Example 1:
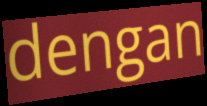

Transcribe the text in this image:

dengan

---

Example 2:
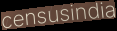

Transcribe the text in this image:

censusindia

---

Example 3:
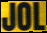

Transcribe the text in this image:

JOL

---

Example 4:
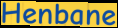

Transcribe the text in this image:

Henbane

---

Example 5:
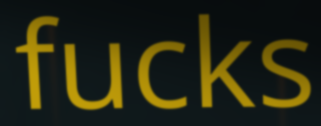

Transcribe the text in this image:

fucks